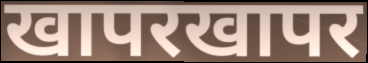
खापरखापर